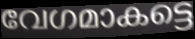
വേഗമാകട്ടെ